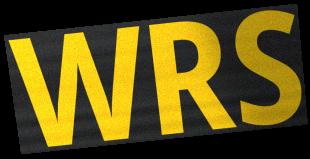
WRS